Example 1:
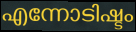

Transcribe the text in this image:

എന്നോടിഷ്ടം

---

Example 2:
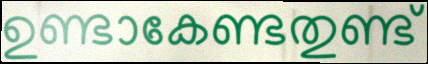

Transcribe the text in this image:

ഉണ്ടാകേണ്ടതുണ്ട്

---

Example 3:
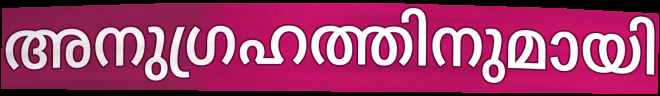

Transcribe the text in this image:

അനുഗ്രഹത്തിനുമായി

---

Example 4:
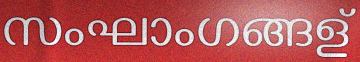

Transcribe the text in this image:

സംഘാംഗങ്ങള്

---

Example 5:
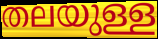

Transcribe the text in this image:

തലയുള്ള